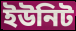
ইউনিট